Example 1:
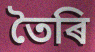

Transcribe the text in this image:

তৈৰি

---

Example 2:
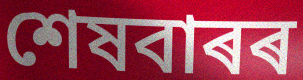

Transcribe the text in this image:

শেষবাৰৰ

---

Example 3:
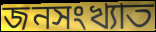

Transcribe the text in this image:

জনসংখ্যাত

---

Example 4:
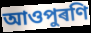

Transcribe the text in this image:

আওপুৰণি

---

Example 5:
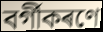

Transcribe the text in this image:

বৰ্গীকৰণে